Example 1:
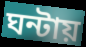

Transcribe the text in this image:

ঘন্টায়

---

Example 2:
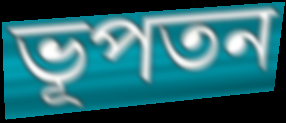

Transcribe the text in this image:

ভূপতন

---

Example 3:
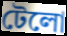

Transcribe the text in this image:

টেলো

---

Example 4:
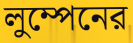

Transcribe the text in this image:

লুম্পেনের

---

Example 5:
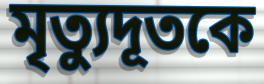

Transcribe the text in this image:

মৃত্যুদূতকে